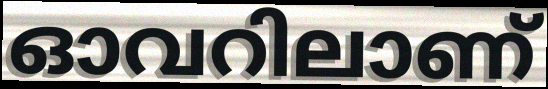
ഓവറിലാണ്